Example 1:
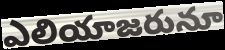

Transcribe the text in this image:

ఎలియాజరునూ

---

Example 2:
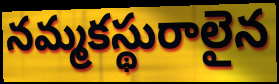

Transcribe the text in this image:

నమ్మకస్థురాలైన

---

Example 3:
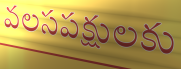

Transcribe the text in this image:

వలసపక్షులకు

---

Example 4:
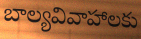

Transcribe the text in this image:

బాల్యవివాహాలకు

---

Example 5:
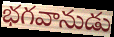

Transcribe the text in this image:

భగవానుడు